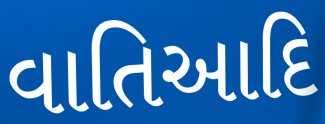
વાતિઆદિ